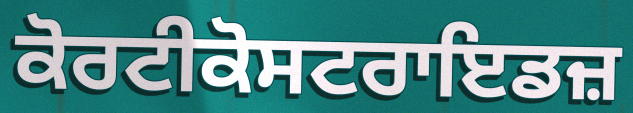
ਕੋਰਟੀਕੋਸਟਰਾਇਡਜ਼